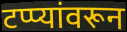
टप्प्यांवरून